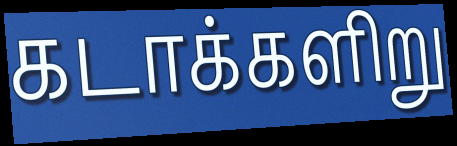
கடாக்களிறு